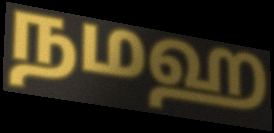
நமஹ